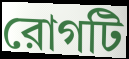
রোগটি